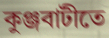
কুঞ্জবাটীতে